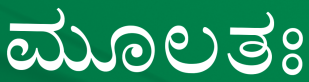
ಮೂಲತಃ